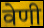
वेणी